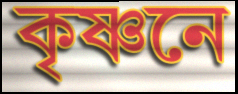
কৃষ্ণনে